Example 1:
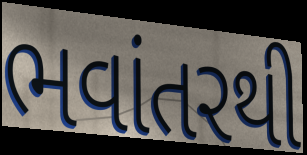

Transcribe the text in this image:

ભવાંતરથી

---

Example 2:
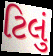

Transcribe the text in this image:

ટિલું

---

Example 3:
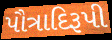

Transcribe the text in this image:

પૌત્રાદિરૂપી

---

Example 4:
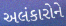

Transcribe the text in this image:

અલંકારોને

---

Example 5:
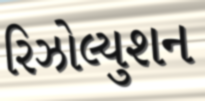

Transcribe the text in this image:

રિઝોલ્યુશન